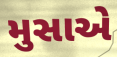
મુસાએ